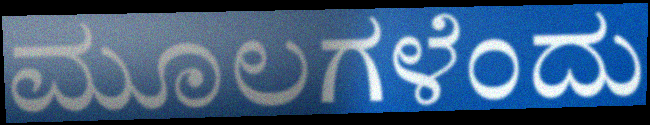
ಮೂಲಗಳೆಂದು